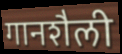
गानशैली